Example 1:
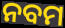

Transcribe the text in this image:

ନବମ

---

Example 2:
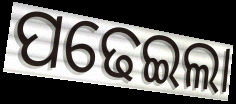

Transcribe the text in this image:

ପଢେଇଲା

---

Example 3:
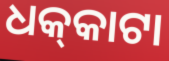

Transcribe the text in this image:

ଧକ୍‌କାଟା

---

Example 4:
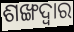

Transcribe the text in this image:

ଶଙ୍ଖଦ୍ୱାର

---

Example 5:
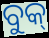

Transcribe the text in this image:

ବୁକ୍